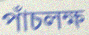
পাঁচলক্ষ